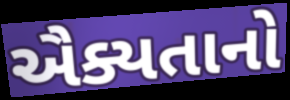
ઐક્યતાનો